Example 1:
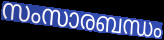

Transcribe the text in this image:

സംസാരബന്ധം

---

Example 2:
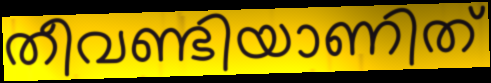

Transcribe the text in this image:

തീവണ്ടിയാണിത്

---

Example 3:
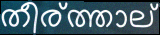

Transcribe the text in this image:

തീര്ത്താല്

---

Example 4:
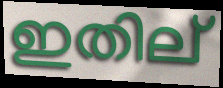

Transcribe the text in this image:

ഇതില്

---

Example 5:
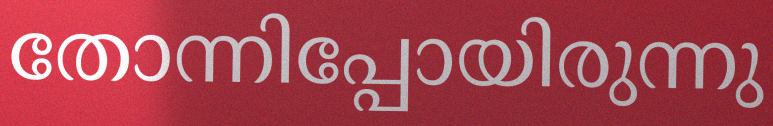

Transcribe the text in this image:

തോന്നിപ്പോയിരുന്നു